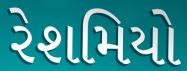
રેશમિયો